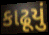
કાઢૂયું